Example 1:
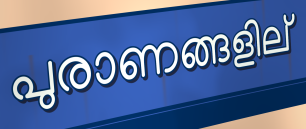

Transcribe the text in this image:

പുരാണങ്ങളില്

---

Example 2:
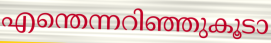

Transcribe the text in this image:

എന്തെന്നറിഞ്ഞുകൂടാ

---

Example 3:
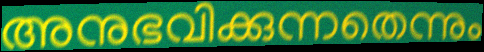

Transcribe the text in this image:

അനുഭവിക്കുന്നതെന്നും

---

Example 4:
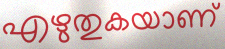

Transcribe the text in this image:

എഴുതുകയാണ്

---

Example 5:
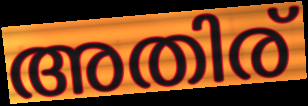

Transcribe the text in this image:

അതിര്